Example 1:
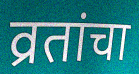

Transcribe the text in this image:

व्रतांचा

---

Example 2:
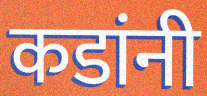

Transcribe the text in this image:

कडांनी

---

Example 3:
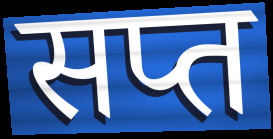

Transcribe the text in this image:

सप्त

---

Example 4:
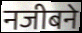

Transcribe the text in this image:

नजीबने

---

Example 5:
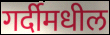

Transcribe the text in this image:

गर्दीमधील